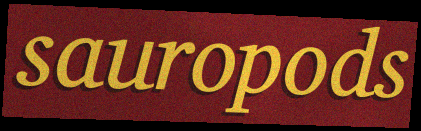
sauropods